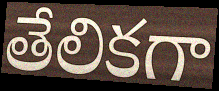
తేలికగా